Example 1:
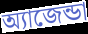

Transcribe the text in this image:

অ্যাজেন্ডা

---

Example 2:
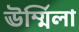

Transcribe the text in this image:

ঊর্ম্মিলা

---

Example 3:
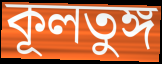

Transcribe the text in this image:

কূলতুঙ্গ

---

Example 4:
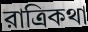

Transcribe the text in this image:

রাত্রিকথা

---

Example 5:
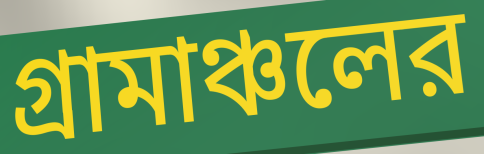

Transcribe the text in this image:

গ্রামাঞ্চলের